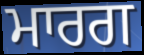
ਮਾਰਗ